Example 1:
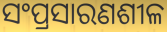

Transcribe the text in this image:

ସଂପ୍ରସାରଣଶୀଳ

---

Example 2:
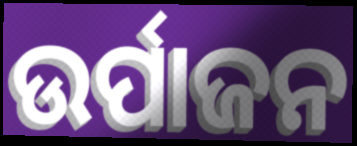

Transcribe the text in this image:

ଉର୍ପାଜନ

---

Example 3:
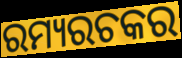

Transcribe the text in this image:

ରମ୍ୟରଚକର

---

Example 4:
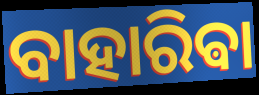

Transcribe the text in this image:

ବାହାରିଵା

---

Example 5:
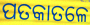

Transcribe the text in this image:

ପତକାତଳେ